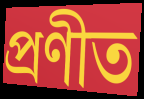
প্ৰণীত